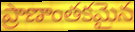
ప్రాణాంతకమైన